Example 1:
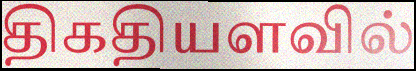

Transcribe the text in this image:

திகதியளவில்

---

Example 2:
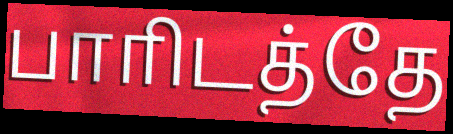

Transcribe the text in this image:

பாரிடத்தே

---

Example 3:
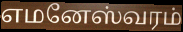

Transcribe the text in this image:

எமனேஸ்வரம்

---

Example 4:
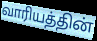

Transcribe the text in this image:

வாரியத்தின்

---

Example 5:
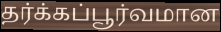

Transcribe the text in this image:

தர்க்கப்பூர்வமான